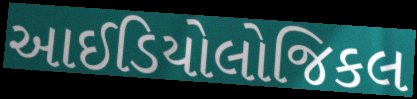
આઈડિયોલોજિકલ